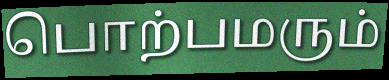
பொற்பமரும்